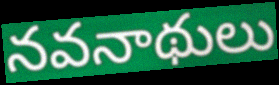
నవనాథులు